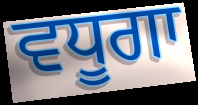
ਵਧੂਗਾ